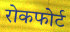
रोकफोर्ट